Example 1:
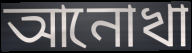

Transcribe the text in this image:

আনোখা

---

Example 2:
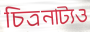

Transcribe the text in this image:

চিত্রনাট্যও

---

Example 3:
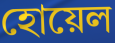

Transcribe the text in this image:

হোয়েল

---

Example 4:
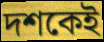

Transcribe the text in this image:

দশকেই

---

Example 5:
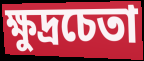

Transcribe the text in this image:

ক্ষুদ্রচেতা